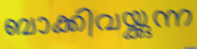
ബാക്കിവയ്ക്കുന്ന